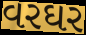
વરઘર